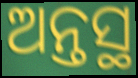
ଅନ୍ତସ୍ଥ